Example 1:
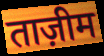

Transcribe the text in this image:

ताज़ीम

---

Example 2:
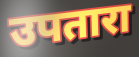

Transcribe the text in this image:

उपतारा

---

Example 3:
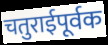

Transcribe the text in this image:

चतुराईपूर्वक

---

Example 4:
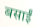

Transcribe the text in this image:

बसाईं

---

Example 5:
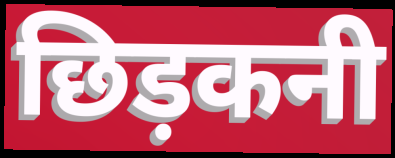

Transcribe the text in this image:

छिड़कनी